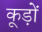
कूड़ों